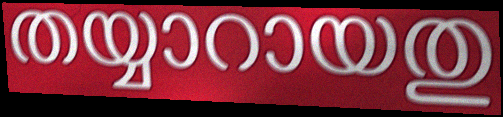
തയ്യാറായതു